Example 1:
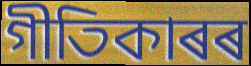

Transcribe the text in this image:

গীতিকাৰৰ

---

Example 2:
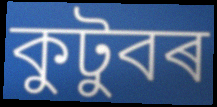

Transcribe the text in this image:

কুটুবৰ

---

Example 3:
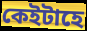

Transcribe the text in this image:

কেইটাহে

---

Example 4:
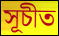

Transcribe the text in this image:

সূচীত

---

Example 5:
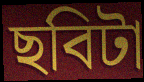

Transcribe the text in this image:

ছবিটা